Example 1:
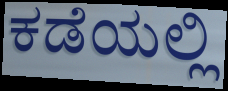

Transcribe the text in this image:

ಕಡೆಯಲ್ಲಿ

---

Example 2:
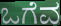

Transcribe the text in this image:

ಒಗೆವ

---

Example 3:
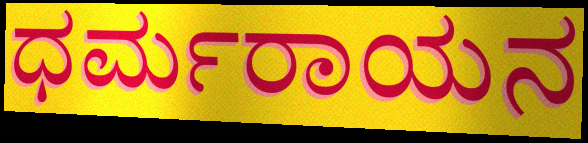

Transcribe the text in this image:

ಧರ್ಮರಾಯನ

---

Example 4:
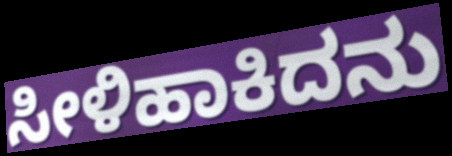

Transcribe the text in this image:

ಸೀಳಿಹಾಕಿದನು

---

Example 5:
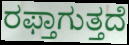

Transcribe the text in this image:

ರಫ್ತಾಗುತ್ತದೆ